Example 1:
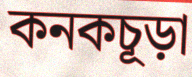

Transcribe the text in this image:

কনকচূড়া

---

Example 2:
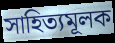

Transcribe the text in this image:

সাহিত্যমূলক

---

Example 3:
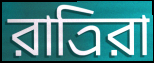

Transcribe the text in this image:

রাত্রিরা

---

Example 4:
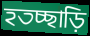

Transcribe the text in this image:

হতচ্ছাড়ি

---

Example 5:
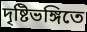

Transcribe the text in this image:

দৃষ্টিভঙ্গিতে